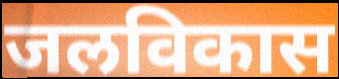
जलविकास